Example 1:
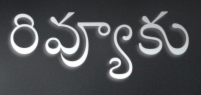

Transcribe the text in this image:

రివ్యూకు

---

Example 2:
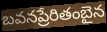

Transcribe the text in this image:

బవనప్రేరితంబైన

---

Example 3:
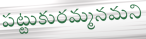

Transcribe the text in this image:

పట్టుకురమ్మనమని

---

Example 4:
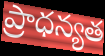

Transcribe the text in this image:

ప్రాధన్యత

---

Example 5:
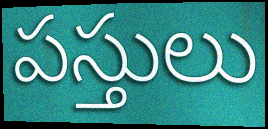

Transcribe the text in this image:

పస్తులు